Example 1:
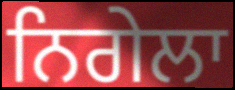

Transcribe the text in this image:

ਨਿਗੇਲਾ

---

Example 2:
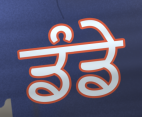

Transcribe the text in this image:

ਡੰਡੇ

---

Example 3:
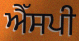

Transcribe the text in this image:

ਐੱਸਪੀ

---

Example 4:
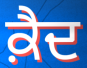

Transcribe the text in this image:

ਕ਼ੈਦ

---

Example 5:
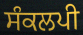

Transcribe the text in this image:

ਸੰਕਲਪੀ